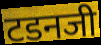
टडनजी